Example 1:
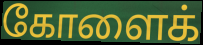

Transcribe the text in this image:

கோளைக்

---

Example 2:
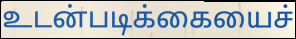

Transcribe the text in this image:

உடன்படிக்கையைச்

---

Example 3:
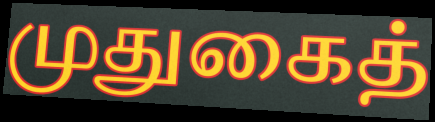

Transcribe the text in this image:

முதுகைத்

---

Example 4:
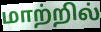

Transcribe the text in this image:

மாற்றில்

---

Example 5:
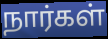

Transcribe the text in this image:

நார்கள்